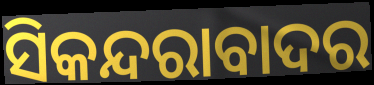
ସିକନ୍ଦରାବାଦର